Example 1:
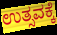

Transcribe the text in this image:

ಉತ್ಸವಕ್ಕೆ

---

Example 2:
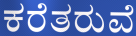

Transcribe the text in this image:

ಕರೆತರುವೆ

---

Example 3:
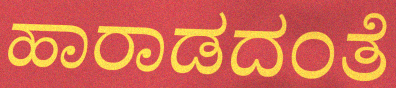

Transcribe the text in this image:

ಹಾರಾಡದಂತೆ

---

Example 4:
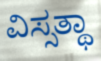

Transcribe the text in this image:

ವಿಸ್ಸತ್ಥಾ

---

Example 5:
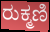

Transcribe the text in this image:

ರುಕ್ಮಣಿ